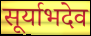
सूर्याभदेव